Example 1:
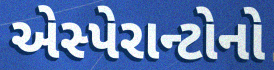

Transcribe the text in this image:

એસ્પેરાન્ટોનો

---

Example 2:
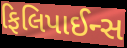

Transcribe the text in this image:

ફિલિપાઈન્સ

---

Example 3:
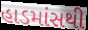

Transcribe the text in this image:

હાડમાંસથી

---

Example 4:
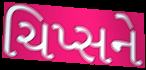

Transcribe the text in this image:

ચિપ્સને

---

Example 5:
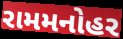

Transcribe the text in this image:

રામમનોહર